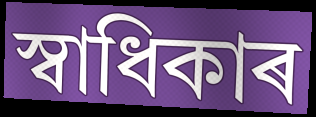
স্বাধিকাৰ